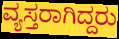
ವ್ಯಸ್ತರಾಗಿದ್ದರು